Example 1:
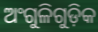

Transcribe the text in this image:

ଅଂଗୁଳିଗୁଡ଼ିକ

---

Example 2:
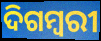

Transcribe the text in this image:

ଦିଗମ୍ୱରୀ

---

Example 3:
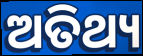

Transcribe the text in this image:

ଅତିଥ୍ୟ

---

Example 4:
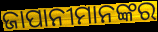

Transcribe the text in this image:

ଜାପାନୀମାନଙ୍କର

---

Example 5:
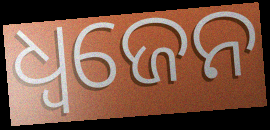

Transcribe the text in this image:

ଧ୍ଵଜେନ